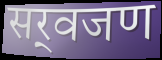
सर्वजण